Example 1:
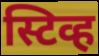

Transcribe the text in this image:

स्टिव्ह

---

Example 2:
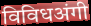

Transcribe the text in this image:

विविधअंगी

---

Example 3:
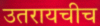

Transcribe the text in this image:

उतरायचीच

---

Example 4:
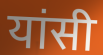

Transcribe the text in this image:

यांसी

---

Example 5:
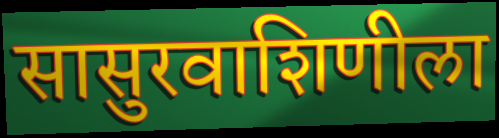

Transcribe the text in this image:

सासुरवाशिणीला